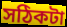
সঠিকটা